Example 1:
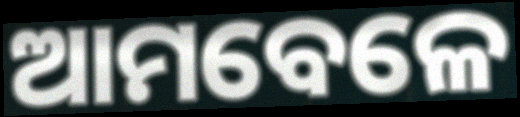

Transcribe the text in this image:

ଆମବେଳେ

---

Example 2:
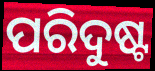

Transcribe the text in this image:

ପରିଦୁଷ୍ଟ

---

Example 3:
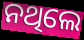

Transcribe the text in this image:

ନଥିଲେ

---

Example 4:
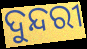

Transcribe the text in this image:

ଦୁନ୍ଦରୀ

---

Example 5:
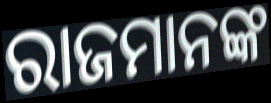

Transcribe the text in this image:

ରାଜମାନଙ୍କ